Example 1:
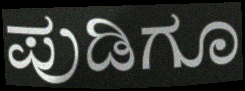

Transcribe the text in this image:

ಪುಡಿಗೂ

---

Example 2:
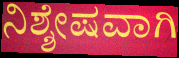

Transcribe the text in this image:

ನಿಶ್ಶೇಷವಾಗಿ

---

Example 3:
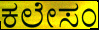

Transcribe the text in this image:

ಕಲೇಸಂ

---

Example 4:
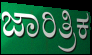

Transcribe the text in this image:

ಜಾರಿತ್ರಿಕ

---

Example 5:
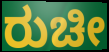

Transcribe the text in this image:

ರುಚೀ